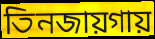
তিনজায়গায়